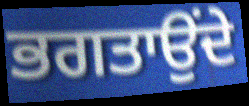
ਭਗਤਾਉਂਦੇ